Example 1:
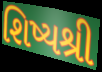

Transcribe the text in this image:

શિષ્યશ્રી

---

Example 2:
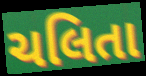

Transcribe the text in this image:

ચલિતા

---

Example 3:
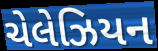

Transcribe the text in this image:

ચેલેઝિયન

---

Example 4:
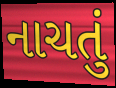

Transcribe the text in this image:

નાચતું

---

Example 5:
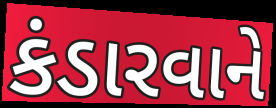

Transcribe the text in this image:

કંડારવાને